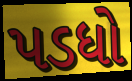
પડધો